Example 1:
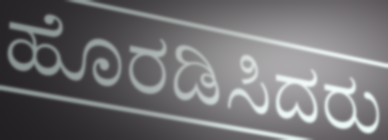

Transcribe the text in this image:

ಹೊರಡಿಸಿದರು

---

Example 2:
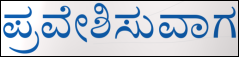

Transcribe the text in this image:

ಪ್ರವೇಶಿಸುವಾಗ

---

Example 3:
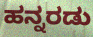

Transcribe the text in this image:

ಹನ್ನರಡು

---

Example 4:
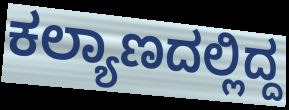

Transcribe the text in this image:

ಕಲ್ಯಾಣದಲ್ಲಿದ್ದ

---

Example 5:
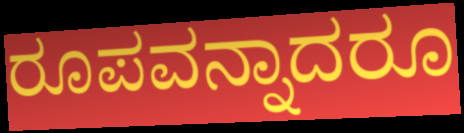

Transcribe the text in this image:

ರೂಪವನ್ನಾದರೂ